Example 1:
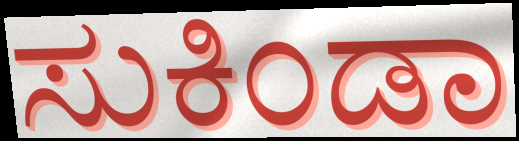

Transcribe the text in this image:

ಸುಕಿಂಡಾ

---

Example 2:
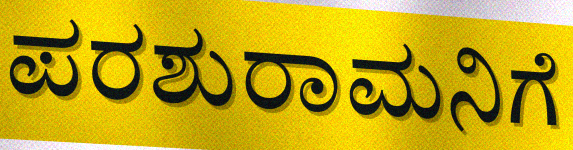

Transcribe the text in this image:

ಪರಶುರಾಮನಿಗೆ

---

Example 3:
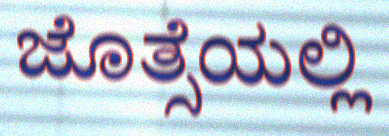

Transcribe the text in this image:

ಜೊತ್ಸೆಯಲ್ಲಿ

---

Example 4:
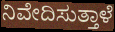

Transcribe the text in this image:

ನಿವೇದಿಸುತ್ತಾಳೆ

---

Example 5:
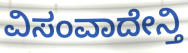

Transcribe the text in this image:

ವಿಸಂವಾದೇನ್ತಿ